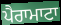
ਪੈਰਾਮਾਟਾ